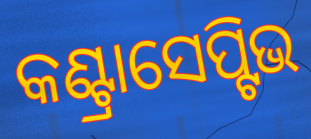
କଣ୍ଟ୍ରାସେପ୍ଟିଭ